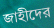
জাহীদের